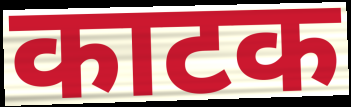
काटक